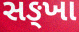
સઙ્ખા